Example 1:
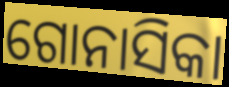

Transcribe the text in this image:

ଗୋନାସିକା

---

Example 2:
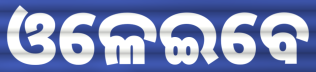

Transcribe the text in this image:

ଓଳେଇବେ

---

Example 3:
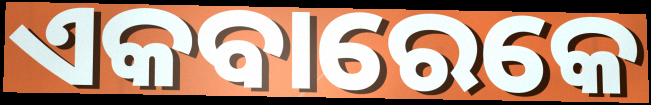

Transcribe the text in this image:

ଏକବାରେକେ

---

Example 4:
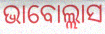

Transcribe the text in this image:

ଭାବୋଲ୍ଲାସ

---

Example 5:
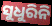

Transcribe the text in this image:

ସୁଧୁରିନି